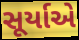
સૂર્યાએ